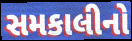
સમકાલીનો